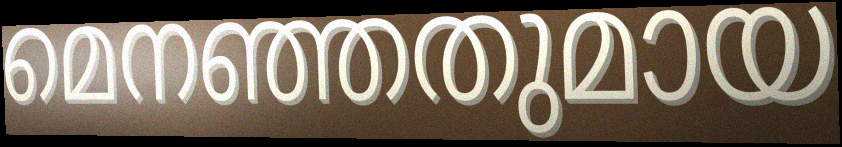
മെനഞ്ഞതുമായ